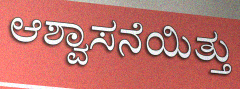
ಆಶ್ವಾಸನೆಯಿತ್ತು